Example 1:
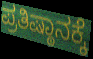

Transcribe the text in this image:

ಪ್ರತಿಷ್ಠಾನಕ್ಕೆ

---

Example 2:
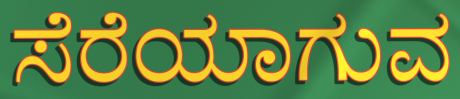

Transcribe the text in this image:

ಸೆರೆಯಾಗುವ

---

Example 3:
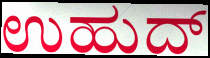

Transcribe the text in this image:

ಉಹುದ್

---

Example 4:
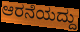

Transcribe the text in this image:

ಆರನೆಯದ್ದು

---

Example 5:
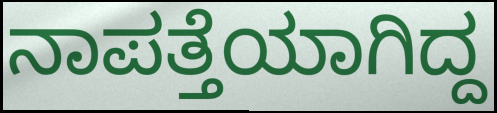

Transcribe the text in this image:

ನಾಪತ್ತೆಯಾಗಿದ್ದ